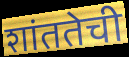
शांततेची